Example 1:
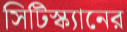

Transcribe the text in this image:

সিটিস্ক্যানের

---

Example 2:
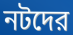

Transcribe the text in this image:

নটদের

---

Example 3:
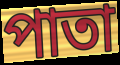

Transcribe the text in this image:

পাতা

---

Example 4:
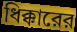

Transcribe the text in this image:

ধিক্কারের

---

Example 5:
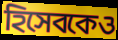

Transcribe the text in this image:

হিসেবকেও